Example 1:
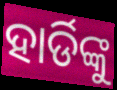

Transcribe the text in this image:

ହାର୍ଡିଙ୍କୁ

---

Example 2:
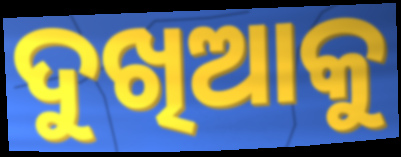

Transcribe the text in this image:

ଦୁଖିଆକୁ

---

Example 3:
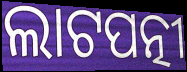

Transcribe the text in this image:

ଲାଟପତ୍ନୀ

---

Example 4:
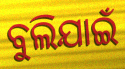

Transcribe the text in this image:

ବୁଲିଯାଇଁ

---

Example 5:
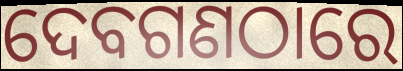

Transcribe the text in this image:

ଦେବଗଣଠାରେ